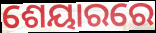
ଶେୟାରରେ